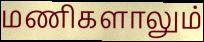
மணிகளாலும்